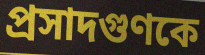
প্রসাদগুণকে